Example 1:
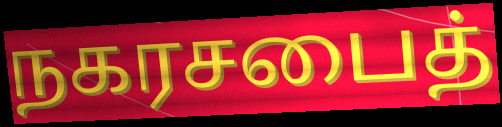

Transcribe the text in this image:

நகரசபைத்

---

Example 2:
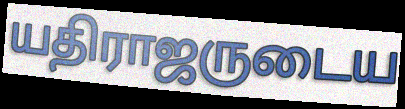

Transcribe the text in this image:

யதிராஜருடைய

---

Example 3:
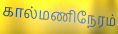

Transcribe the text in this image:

கால்மணிநேரம்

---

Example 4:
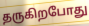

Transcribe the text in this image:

தருகிறபோது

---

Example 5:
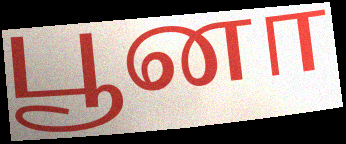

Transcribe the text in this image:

பூனா